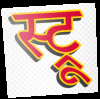
स्ट्रू